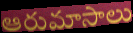
ఆరుమాసాలు